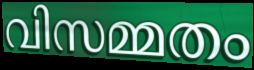
വിസമ്മതം